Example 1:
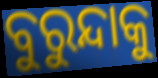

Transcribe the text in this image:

ବୁରୁନ୍ଦାକୁ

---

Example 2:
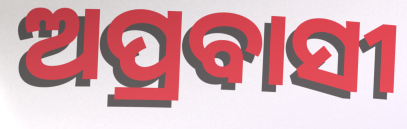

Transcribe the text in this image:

ଅପ୍ରବାସୀ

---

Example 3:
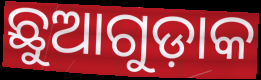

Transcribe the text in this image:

ଛୁଆଗୁଡ଼ାକ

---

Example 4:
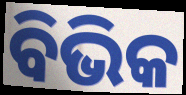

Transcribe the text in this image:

ବିଭିକ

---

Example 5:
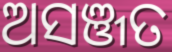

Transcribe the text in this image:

ଅସଞ୍ଜତ